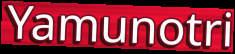
Yamunotri